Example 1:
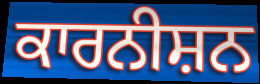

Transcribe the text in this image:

ਕਾਰਨੀਸ਼ਨ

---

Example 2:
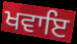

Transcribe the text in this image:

ਖਵਾਇ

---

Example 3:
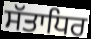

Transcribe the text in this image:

ਸੱਤਾਧਿਰ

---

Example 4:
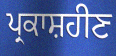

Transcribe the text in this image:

ਪ੍ਰਕਾਸ਼ਹੀਣ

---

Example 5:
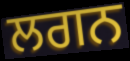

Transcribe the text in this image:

ਲਗਨ